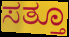
ಸತ್ತೂ